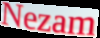
Nezam